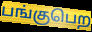
பங்குபெற